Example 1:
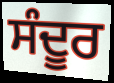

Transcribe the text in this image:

ਸੰਦੂਰ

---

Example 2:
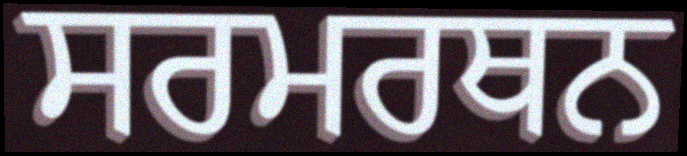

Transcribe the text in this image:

ਸਰਮਰਥਨ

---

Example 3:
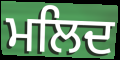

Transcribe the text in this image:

ਮਲਿਦ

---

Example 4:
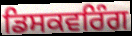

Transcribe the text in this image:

ਡਿਸਕਵਰਿੰਗ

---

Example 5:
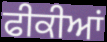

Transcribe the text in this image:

ਫੀਕੀਆਂ